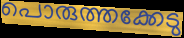
പൊരുത്തക്കേടു